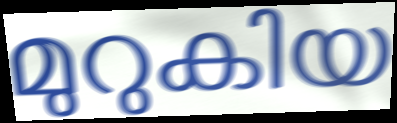
മുറുകിയ